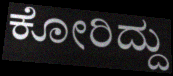
ಕೋರಿದ್ದು